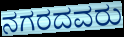
ನಗರದವರು